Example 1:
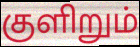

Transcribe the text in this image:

குளிறும்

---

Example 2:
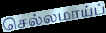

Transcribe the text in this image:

செல்லமாய்ப்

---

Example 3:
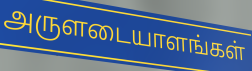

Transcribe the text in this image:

அருளடையாளங்கள்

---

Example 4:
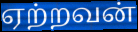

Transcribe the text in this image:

ஏற்றவன்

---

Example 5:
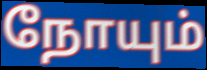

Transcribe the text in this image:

நோயும்